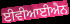
ਈਵੀਆਈਐਨ